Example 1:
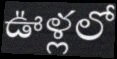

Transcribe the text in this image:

ఊళ్లలో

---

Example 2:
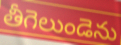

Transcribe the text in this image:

తీగెలుండెను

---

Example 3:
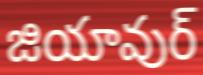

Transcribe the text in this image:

జియావుర్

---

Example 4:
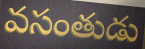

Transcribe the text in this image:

వసంతుడు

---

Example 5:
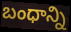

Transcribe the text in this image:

బంధాన్ని